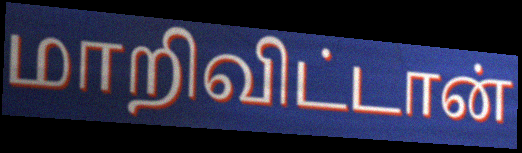
மாறிவிட்டான்